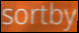
sortby